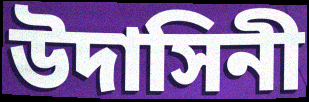
উদাসিনী